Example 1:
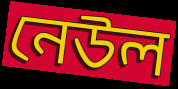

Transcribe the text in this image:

নেউল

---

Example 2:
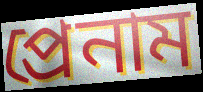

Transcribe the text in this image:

প্রেনাম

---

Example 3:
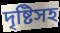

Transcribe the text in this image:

দৃষ্টিসহ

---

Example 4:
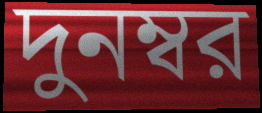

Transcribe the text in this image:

দুনম্বর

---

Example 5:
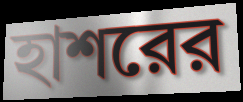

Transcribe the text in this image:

হাশরের